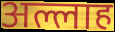
अल्लाह